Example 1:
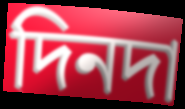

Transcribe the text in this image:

দিনদা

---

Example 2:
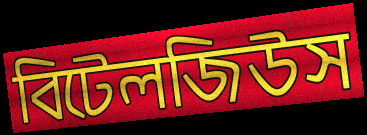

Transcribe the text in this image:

বিটেলজিউস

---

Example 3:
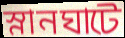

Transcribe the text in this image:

স্নানঘাটে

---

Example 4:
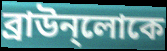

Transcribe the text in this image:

ব্রাউন্লোকে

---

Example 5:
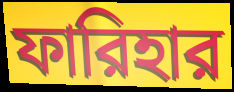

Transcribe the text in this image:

ফারিহার